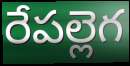
రేపల్లెగ